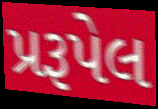
પ્રરૂપેલ